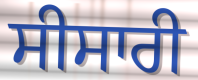
ਸੀਸਾਰੀ